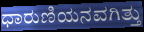
ಧಾರುಣಿಯನವಗಿತ್ತು